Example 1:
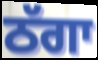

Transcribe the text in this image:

ਠੱਗਾ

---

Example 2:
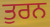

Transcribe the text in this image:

ਤੁਰਨ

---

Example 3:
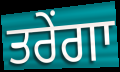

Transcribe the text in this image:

ਤਰੇਂਗਾ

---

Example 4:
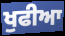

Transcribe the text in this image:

ਖੁਫੀਆ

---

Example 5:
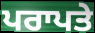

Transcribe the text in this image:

ਪਰਾਪਤੇ